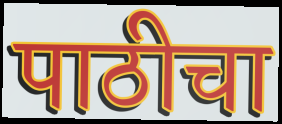
पाठीचा